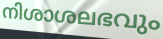
നിശാശലഭവും